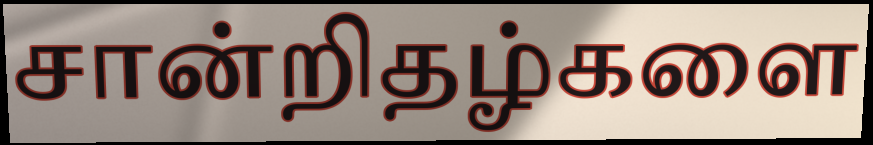
சான்றிதழ்களை